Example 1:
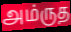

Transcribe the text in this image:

அம்ருத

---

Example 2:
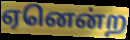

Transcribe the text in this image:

ஏனென்ற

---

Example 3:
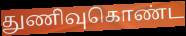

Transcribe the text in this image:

துணிவுகொண்ட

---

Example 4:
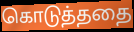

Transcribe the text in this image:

கொடுத்ததை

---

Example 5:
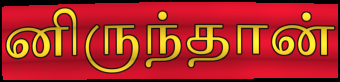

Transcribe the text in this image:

னிருந்தான்